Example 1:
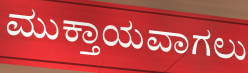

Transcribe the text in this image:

ಮುಕ್ತಾಯವಾಗಲು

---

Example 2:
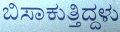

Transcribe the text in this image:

ಬಿಸಾಕುತ್ತಿದ್ದಳು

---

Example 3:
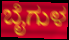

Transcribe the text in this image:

ಬೈಗುಳ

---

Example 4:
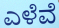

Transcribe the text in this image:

ಎಳೆವೆ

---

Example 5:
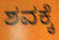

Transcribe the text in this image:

ಶವಕ್ಕೆ